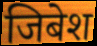
जिबेश